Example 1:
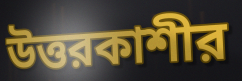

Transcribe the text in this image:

উত্তরকাশীর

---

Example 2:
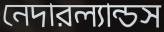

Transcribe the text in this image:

নেদারল্যান্ডস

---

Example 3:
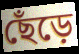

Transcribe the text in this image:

ছেঁড়ে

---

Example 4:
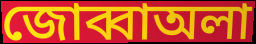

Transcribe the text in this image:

জোব্বাঅলা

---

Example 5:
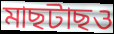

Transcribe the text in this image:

মাছটাছও